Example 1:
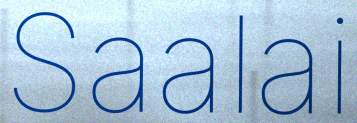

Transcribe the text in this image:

Saalai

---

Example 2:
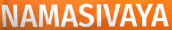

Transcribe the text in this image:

NAMASIVAYA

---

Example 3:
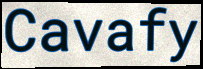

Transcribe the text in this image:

Cavafy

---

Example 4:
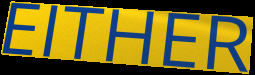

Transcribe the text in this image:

EITHER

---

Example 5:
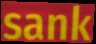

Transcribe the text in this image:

sank